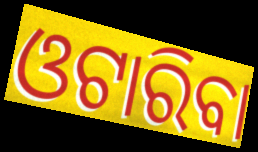
ଓଟାରିବା